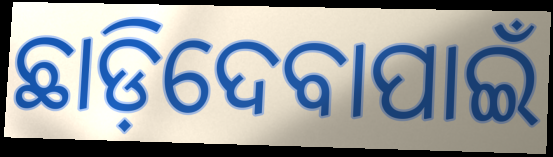
ଛାଡ଼ିଦେବାପାଇଁ